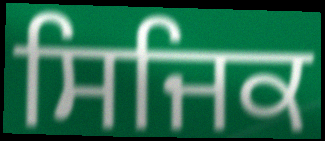
ਸਿਜਿਕ